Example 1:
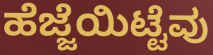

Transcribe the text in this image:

ಹೆಜ್ಜೆಯಿಟ್ಟೆವು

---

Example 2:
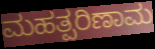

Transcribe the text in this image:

ಮಹತ್ಪರಿಣಾಮ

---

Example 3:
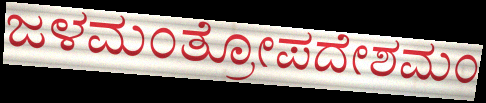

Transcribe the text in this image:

ಜಳಮಂತ್ರೋಪದೇಶಮಂ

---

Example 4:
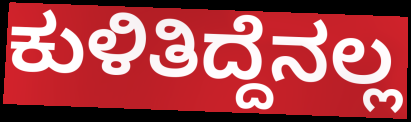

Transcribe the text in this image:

ಕುಳಿತಿದ್ದೆನಲ್ಲ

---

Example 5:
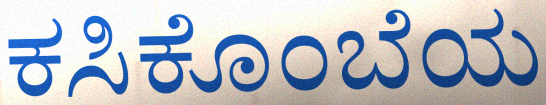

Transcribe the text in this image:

ಕಸಿಕೊಂಬೆಯ